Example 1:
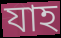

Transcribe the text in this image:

যাহ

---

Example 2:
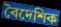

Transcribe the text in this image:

বৈদেশিক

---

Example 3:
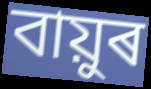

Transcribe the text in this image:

বায়ুৰ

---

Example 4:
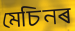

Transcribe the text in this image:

মেচিনৰ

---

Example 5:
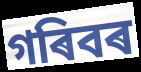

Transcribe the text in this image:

গৰিবৰ